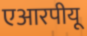
एआरपीयू